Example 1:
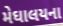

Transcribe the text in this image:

મેઘાલયના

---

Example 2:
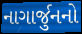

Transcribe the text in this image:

નાગાર્જુનનો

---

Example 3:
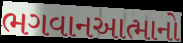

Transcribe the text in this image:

ભગવાનઆત્માનો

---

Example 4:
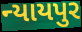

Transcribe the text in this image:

ન્યાયપુર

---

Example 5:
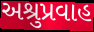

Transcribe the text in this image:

અશ્રુપ્રવાહ